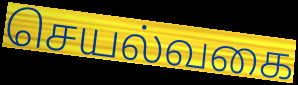
செயல்வகை